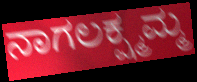
ನಾಗಲಕ್ಷ್ಮಮ್ಮ